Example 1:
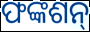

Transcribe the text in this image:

ଫଙ୍କଶନ୍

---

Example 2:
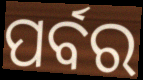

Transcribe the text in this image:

ପର୍ବର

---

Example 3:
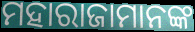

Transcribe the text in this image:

ମହାରାଜାମାନଙ୍କ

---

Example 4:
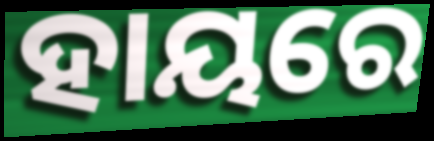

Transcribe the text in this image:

ହାୟରେ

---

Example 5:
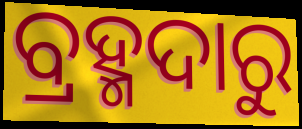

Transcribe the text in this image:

ବ୍ରହ୍ମଦାରୁ